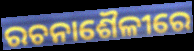
ରଚନାଶୈଳୀରେ